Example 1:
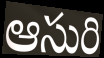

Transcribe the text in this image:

ఆసురి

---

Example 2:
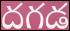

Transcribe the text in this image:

దగడ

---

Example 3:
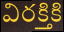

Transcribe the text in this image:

విరక్తికి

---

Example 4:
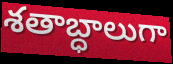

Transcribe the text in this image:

శతాబ్ధాలుగా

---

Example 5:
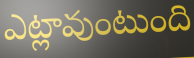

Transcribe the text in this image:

ఎట్లావుంటుంది